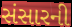
સંસારની